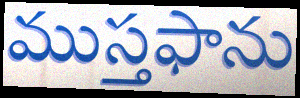
ముస్తఫాను